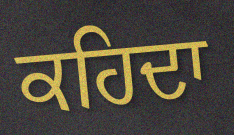
ਕਹਿਦਾ